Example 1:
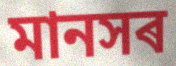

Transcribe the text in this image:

মানসৰ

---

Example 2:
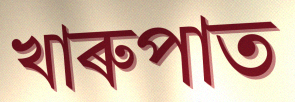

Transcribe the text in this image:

খাৰুপাত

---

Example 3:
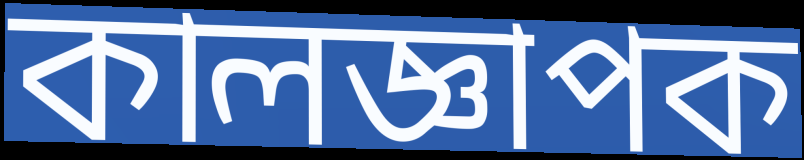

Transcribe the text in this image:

কালজ্ঞাপক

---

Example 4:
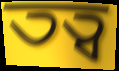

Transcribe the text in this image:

তত্ব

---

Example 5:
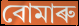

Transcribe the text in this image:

বোমাৰু